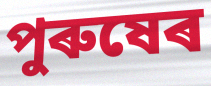
পুৰুষেৰ